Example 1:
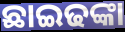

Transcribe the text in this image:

ଛାଇଢଙ୍କା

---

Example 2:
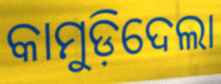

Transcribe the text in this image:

କାମୁଡ଼ିଦେଲା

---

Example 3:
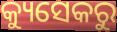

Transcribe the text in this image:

କ୍ୟୁସେକରୁ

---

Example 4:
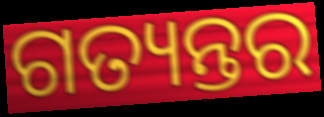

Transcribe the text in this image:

ଗତ୍ୟନ୍ତର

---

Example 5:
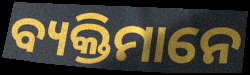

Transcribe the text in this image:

ବ୍ୟକ୍ତିମାନେ